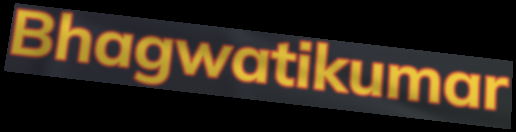
Bhagwatikumar